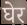
घेर